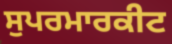
ਸੁਪਰਮਾਰਕੀਟ